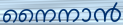
നൈനാൻ